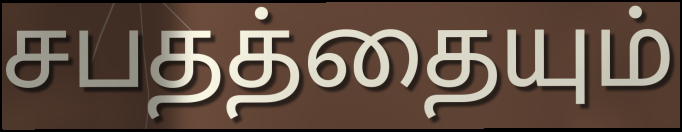
சபதத்தையும்